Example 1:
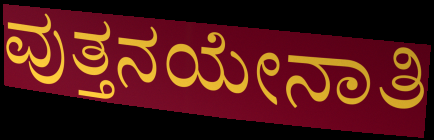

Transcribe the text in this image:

ವುತ್ತನಯೇನಾತಿ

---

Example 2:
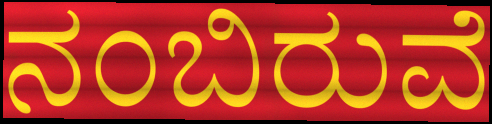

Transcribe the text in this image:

ನಂಬಿರುವೆ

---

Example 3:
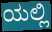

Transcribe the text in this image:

ಯಲ್ಲಿ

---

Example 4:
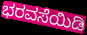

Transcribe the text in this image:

ಭರವಸೆಯಿಡಿ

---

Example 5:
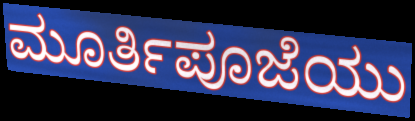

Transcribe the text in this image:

ಮೂರ್ತಿಪೂಜೆಯು